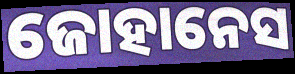
ଜୋହାନେସ